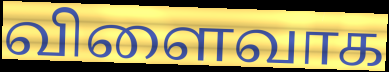
விளைவாக